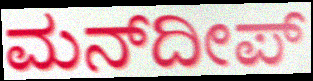
ಮನ್‍ದೀಪ್